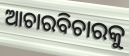
ଆଚାରବିଚାରକୁ